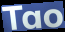
Tao